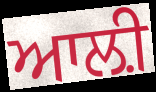
ਆਲ਼ੀ